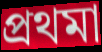
প্ৰথমা